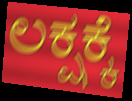
ಲಕ್ಷಕ್ಕೆ